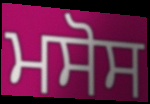
ਮਸੋਸ